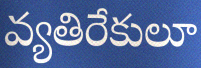
వ్యతిరేకులూ